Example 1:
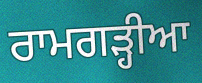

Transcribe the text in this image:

ਰਾਮਗੜ੍ਹੀਆ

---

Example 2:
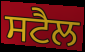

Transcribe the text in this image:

ਸਟੈਲ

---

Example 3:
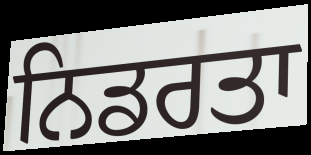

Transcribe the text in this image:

ਨਿਡਰਤਾ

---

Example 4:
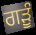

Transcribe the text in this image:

ਗੜੂੰ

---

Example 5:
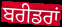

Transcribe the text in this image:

ਬਰੀਡਰਾਂ